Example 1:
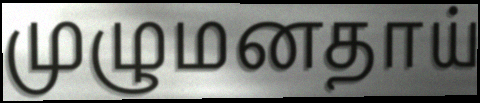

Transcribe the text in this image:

முழுமனதாய்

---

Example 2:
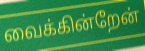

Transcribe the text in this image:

வைக்கின்றேன்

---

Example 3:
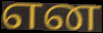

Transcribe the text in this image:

என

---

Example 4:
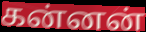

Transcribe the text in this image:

கன்னன்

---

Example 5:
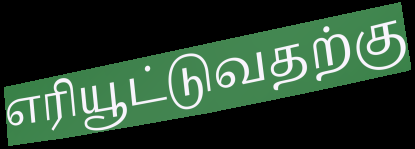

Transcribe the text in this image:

எரியூட்டுவதற்கு